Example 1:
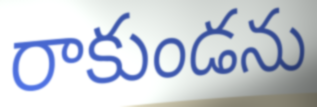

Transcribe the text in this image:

రాకుండను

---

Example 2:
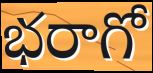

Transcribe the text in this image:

భరాగో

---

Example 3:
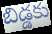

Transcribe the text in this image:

బిడ్డకు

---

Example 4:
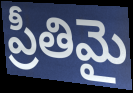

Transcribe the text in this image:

ప్రీతిమై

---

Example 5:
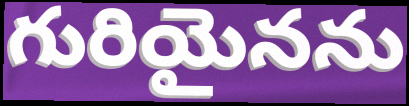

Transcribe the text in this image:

గురియైనను